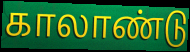
காலாண்டு